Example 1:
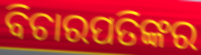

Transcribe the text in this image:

ବିଚାରପତିଙ୍କର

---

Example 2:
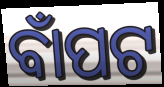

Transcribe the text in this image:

ବାଁପଟ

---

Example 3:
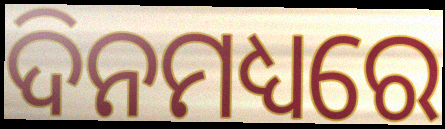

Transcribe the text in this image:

ଦିନମଧ୍ୟରେ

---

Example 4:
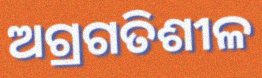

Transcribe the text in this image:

ଅଗ୍ରଗତିଶୀଳ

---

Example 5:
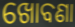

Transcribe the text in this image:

ଖୋବଣା